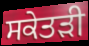
ਸਕੇਤੜੀ